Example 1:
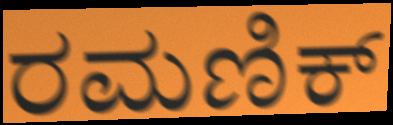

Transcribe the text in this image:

ರಮಣಿಕ್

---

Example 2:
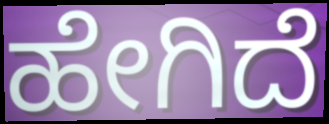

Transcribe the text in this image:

ಹೇಗಿದೆ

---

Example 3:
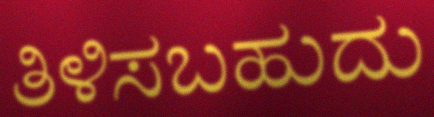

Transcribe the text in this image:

ತಿಳಿಸಬಹುದು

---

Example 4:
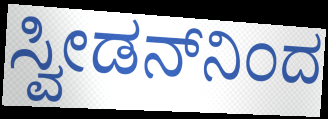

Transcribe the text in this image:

ಸ್ವೀಡನ್‌ನಿಂದ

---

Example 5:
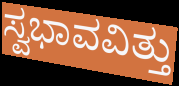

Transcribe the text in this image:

ಸ್ವಭಾವವಿತ್ತು